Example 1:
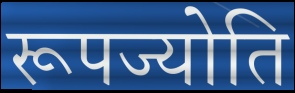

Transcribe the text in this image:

रूपज्योति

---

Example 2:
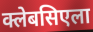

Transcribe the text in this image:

क्लेबसिएला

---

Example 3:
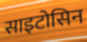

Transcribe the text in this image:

साइटोसिन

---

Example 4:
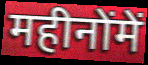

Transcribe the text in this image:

महीनोंमें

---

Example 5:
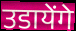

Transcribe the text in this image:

उडायेंगे